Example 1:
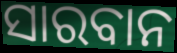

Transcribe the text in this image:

ସାରବାନ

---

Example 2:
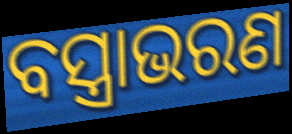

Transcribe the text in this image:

ବସ୍ତ୍ରାଭରଣ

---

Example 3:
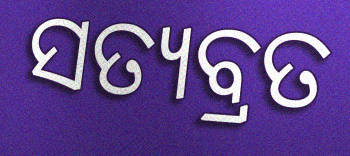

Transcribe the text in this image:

ସତ୍ୟବ୍ରତ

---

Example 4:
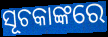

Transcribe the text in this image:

ସୂଚକାଙ୍କରେ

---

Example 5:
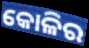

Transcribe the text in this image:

କୋଳିର